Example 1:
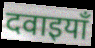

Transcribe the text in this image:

दवाइयाँ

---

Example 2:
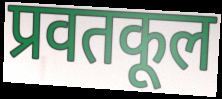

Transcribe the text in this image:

प्रवतकूल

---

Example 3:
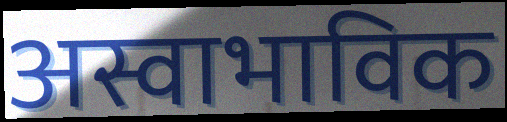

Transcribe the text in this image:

अस्वाभाविक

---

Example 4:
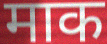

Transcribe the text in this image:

माक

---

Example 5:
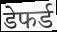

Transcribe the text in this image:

डेफर्ड